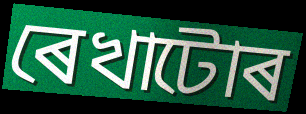
ৰেখাটোৰ